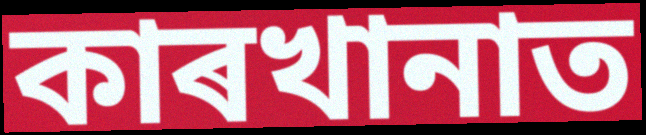
কাৰখানাত